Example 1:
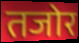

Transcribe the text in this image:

तजोर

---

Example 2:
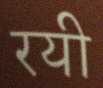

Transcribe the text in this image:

रयी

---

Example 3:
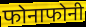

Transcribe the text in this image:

फोनाफोनी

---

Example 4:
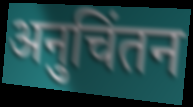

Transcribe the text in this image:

अनुचिंतन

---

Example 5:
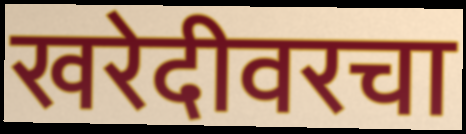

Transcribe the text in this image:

खरेदीवरचा